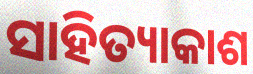
ସାହିତ୍ୟାକାଶ